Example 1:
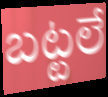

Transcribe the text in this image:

బట్టలే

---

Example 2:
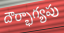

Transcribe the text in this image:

దౌర్భాగ్యపు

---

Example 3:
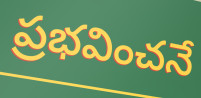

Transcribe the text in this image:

ప్రభవించనే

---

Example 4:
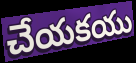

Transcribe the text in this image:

చేయకయు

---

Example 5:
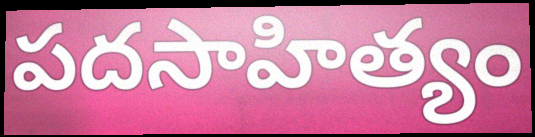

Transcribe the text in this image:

పదసాహిత్యం